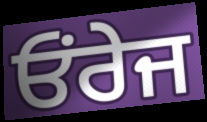
ਓਂਰੇਜ